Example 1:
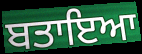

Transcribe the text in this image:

ਬਤਾਇਆ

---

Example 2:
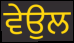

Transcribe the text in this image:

ਵੇਉਲ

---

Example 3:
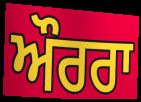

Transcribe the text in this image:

ਔਰਰਾ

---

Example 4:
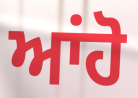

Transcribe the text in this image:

ਆਂਹੋ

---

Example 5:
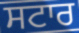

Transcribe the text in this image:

ਸਟਾਰ